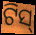
ଟିସ୍